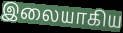
இலையாகிய